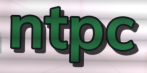
ntpc